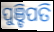
ପୁଞ୍ଚିପତି